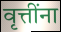
वृत्तींना